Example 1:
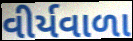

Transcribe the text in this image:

વીર્યવાળા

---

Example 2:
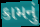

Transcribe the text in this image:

કામનું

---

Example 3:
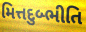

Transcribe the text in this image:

મિત્તદુબ્ભીતિ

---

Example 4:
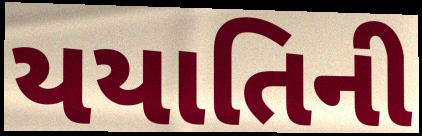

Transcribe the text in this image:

યયાતિની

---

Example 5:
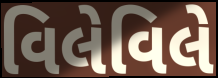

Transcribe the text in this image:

વિલેવિલે